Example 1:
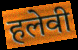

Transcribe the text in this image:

हलेवी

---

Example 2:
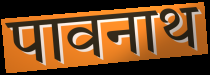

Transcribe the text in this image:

पावनाथ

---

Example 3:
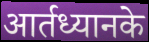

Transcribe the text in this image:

आर्तध्यानके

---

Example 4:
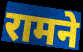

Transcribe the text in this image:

रामने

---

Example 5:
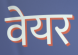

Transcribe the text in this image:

वेयर